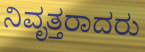
ನಿವೃತ್ತರಾದರು